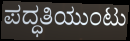
ಪದ್ಧತಿಯುಂಟು